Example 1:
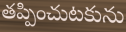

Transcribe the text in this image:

తప్పించుటకును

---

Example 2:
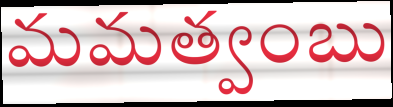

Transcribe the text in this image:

మమత్వంబు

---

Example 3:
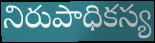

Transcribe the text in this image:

నిరుపాధికస్య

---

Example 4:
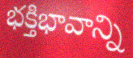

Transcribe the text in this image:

భక్తిభావాన్ని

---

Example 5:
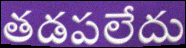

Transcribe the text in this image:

తడపలేదు